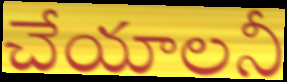
చేయాలనీ